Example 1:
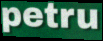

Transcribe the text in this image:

petru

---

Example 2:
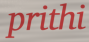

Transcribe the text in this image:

prithi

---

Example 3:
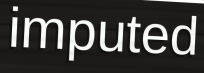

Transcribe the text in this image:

imputed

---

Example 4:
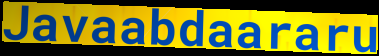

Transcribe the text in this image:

Javaabdaararu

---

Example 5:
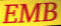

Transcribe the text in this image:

EMB